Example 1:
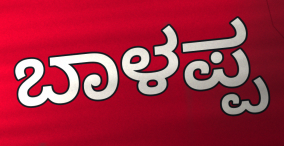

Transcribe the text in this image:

ಬಾಳಪ್ಪ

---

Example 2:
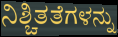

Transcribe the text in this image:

ನಿಶ್ಚಿತತೆಗಳನ್ನು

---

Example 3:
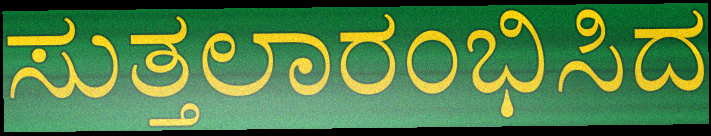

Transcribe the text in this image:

ಸುತ್ತಲಾರಂಭಿಸಿದ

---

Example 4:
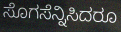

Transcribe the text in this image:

ಸೊಗಸೆನ್ನಿಸಿದರೂ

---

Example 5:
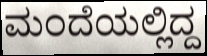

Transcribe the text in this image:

ಮಂದೆಯಲ್ಲಿದ್ದ